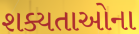
શક્યતાઓના